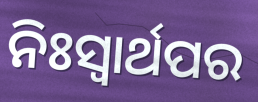
ନିଃସ୍ୱାର୍ଥପର